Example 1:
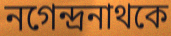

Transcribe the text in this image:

নগেন্দ্রনাথকে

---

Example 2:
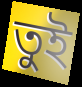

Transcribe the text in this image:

তুই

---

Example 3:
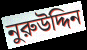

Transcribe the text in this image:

নুরুউদ্দিন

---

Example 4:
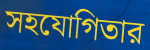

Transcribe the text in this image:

সহযোগিতার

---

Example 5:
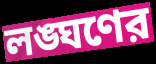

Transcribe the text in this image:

লঙ্ঘণের